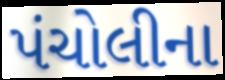
પંચોલીના